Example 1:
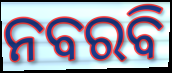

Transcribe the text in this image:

ନବରବି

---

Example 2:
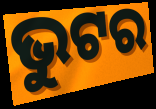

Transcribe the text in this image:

ଭୁଟର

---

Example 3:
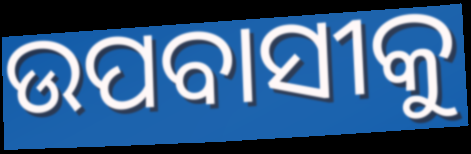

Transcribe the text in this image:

ଉପବାସୀକୁ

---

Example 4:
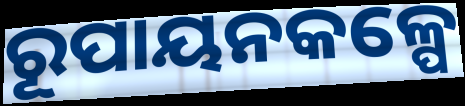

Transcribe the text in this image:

ରୂପାୟନକଳ୍ପେ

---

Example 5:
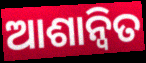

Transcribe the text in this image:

ଆଶାନ୍ବିତ